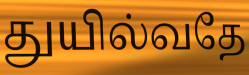
துயில்வதே